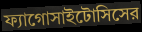
ফ্যাগোসাইটোসিসের